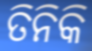
ତିନିକି